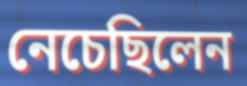
নেচেছিলেন